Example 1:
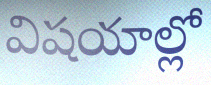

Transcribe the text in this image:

విషయాల్లో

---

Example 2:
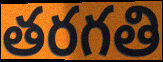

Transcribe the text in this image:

తరగతి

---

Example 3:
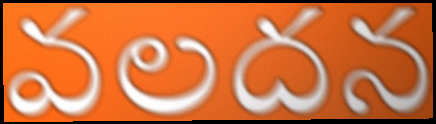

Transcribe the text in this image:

వలదన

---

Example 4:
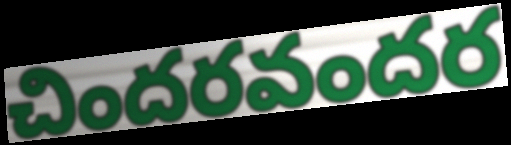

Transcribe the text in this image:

చిందరవందర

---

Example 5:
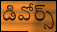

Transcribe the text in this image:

డివోర్స్